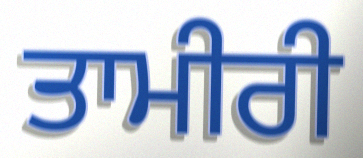
ਤਾਮੀਰੀ